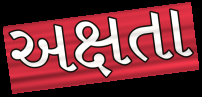
અક્ષતા